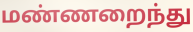
மண்ணறைந்து